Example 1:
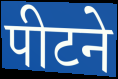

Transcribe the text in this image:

पीटने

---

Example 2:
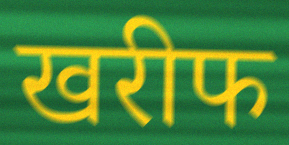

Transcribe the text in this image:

खरीफ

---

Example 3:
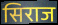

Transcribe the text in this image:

सिराज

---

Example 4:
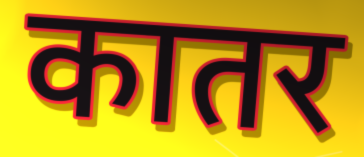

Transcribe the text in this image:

कातर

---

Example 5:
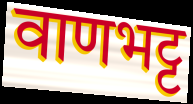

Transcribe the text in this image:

वाणभट्ट